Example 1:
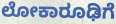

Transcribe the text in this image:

ಲೋಕಾರೂಢಿಗೆ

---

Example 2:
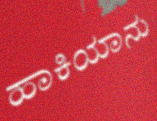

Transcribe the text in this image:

ಹಾಕಿಯಾನು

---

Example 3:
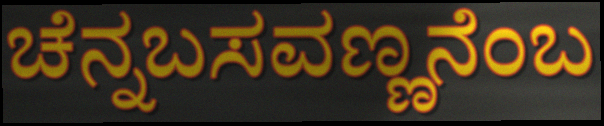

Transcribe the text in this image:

ಚೆನ್ನಬಸವಣ್ಣನೆಂಬ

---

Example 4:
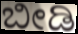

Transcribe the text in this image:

ಬೀಡಿ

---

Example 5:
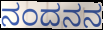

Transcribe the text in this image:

ನಂದನನ